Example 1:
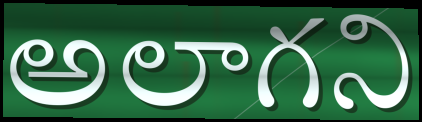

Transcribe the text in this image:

అలాగని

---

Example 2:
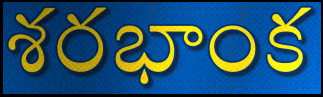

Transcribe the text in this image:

శరభాంక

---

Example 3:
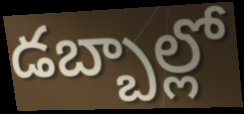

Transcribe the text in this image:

డబ్బాల్లో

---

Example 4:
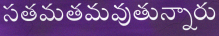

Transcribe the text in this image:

సతమతమవుతున్నారు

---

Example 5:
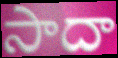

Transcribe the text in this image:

సాదా